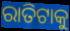
ରାତିଟାକୁ